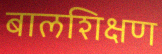
बालशिक्षण